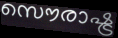
സൌരാഷ്ട്ര